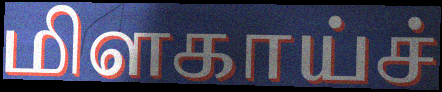
மிளகாய்ச்